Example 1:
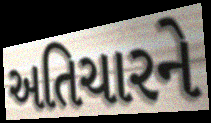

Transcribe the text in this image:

અતિચારને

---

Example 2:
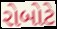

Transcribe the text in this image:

રોબોટે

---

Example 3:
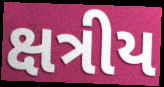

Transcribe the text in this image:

ક્ષત્રીય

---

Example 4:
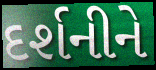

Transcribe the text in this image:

દર્શનીને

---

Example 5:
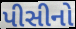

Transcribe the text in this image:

પીસીનો